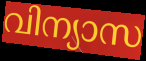
വിന്യാസ